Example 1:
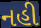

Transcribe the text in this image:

નહી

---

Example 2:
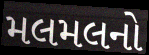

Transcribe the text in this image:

મલમલનો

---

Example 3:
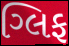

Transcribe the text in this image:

ગ્લિફ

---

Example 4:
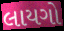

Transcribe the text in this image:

લાયગો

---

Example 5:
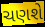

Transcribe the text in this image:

ચણશે